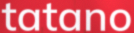
tatano